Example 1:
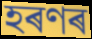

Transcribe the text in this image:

হৰণৰ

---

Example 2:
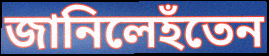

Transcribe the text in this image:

জানিলেহঁতেন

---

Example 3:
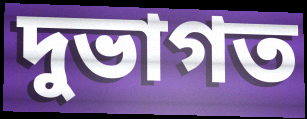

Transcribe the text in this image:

দুভাগত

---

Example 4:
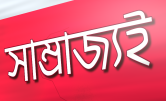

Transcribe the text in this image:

সাম্ৰাজ্যই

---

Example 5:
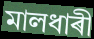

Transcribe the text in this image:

মালধাৰী